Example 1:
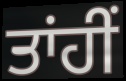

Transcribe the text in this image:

ਤਾਂਹੀਂ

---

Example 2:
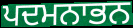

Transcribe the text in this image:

ਪਦਮਨਾਭਨ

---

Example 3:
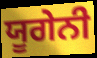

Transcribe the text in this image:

ਯੂਗੇਨੀ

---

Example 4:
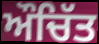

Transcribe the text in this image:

ਔਚਿੱਤ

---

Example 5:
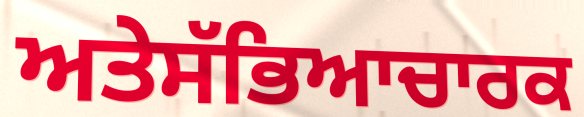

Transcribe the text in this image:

ਅਤੇਸੱਭਿਆਚਾਰਕ